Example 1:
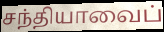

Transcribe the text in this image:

சந்தியாவைப்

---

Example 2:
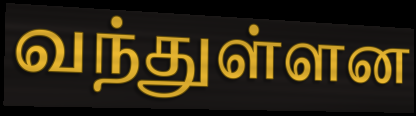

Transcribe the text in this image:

வந்துள்ளன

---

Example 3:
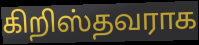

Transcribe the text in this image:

கிறிஸ்தவராக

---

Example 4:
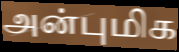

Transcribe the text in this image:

அன்புமிக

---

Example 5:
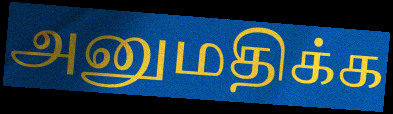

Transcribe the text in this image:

அனுமதிக்க